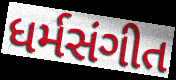
ધર્મસંગીત